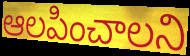
ఆలపించాలని